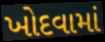
ખોદવામાં